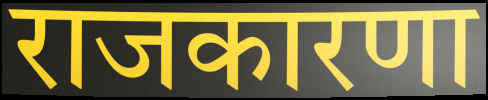
राजकारणा